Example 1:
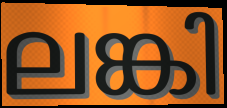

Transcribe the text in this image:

ലങ്കി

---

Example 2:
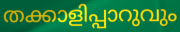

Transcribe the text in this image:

തക്കാളിപ്പാറുവും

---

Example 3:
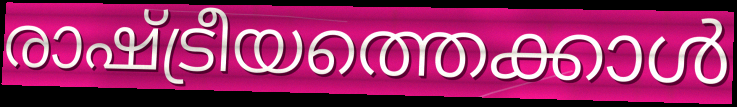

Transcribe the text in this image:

രാഷ്ട്രീയത്തെക്കാൾ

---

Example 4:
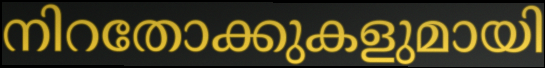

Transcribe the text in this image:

നിറതോക്കുകളുമായി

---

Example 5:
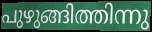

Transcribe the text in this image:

പുഴുങ്ങിത്തിന്നു